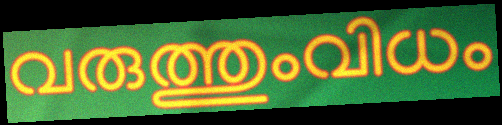
വരുത്തുംവിധം